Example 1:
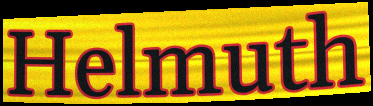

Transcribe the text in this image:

Helmuth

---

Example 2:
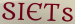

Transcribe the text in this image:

SIETs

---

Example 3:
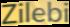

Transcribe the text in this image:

Zilebi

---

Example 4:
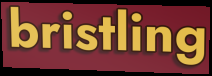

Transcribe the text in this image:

bristling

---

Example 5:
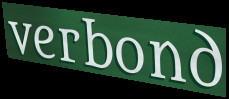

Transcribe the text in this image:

verbond